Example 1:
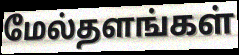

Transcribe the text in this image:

மேல்தளங்கள்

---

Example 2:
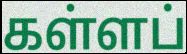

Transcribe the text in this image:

கள்ளப்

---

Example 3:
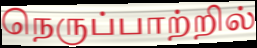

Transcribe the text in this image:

நெருப்பாற்றில்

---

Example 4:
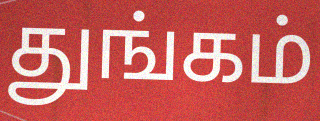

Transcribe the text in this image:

துங்கம்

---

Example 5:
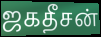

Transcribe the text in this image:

ஜகதீசன்